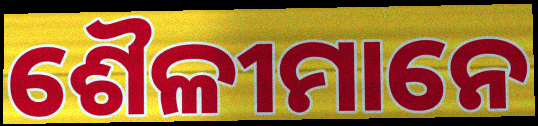
ଶୈଳୀମାନେ